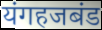
यंगहजबंड